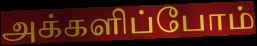
அக்களிப்போம்